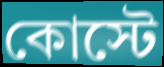
কোস্টে